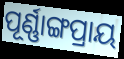
ପୂର୍ଣ୍ଣାଙ୍ଗପ୍ରାୟ